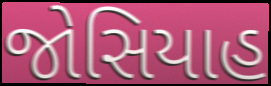
જોસિયાહ